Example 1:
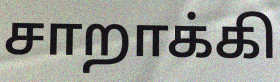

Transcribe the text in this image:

சாறாக்கி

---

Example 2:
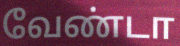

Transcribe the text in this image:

வேண்டா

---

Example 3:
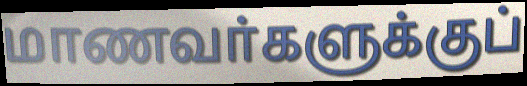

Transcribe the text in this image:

மாணவர்களுக்குப்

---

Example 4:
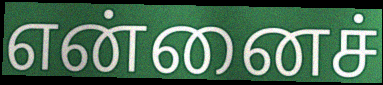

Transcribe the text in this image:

என்னைச்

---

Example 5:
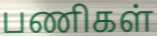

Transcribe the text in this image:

பணிகள்